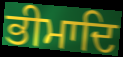
ਭੀਮਾਦਿ